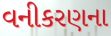
વનીકરણના